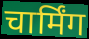
चार्मिंग